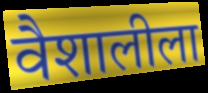
वैशालीला